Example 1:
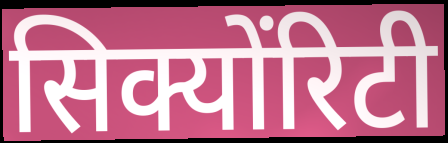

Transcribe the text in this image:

सिक्योंरिटी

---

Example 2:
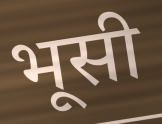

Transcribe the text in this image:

भूसी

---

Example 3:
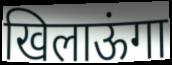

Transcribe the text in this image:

खिलाऊंगा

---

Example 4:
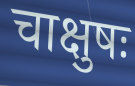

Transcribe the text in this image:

चाक्षुषः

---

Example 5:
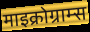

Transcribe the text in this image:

माइक्रोग्राम्स